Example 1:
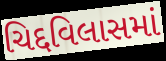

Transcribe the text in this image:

ચિદ્દવિલાસમાં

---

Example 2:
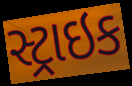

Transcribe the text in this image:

સ્ટ્રાઇક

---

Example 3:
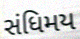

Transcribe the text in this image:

સંધિમય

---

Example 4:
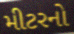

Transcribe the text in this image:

મીટરનો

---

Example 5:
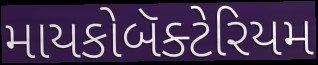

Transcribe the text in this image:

માયકોબૅક્ટેરિયમ